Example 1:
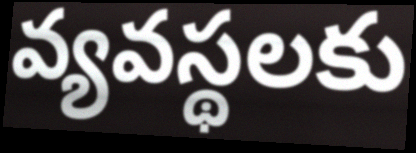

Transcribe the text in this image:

వ్యవస్థలకు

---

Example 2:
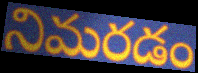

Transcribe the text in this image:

నిమరడం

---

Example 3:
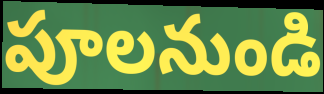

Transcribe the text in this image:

పూలనుండి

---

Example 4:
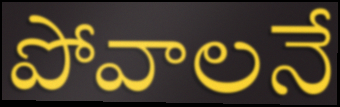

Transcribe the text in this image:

పోవాలనే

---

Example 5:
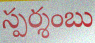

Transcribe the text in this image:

స్పర్శంబు